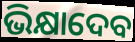
ଭିକ୍ଷାଦେବ